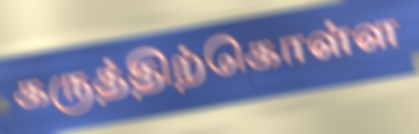
கருத்திற்கொள்ள